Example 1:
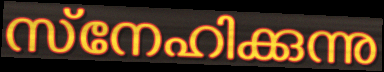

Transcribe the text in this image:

സ്‌നേഹിക്കുന്നു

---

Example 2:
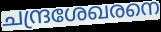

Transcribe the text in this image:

ചന്ദ്രശേഖരനെ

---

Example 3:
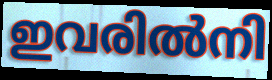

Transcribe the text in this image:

ഇവരിൽനി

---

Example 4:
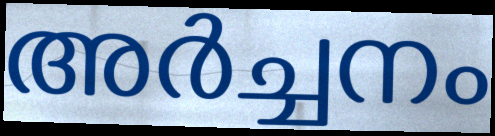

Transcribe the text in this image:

അർച്ചനം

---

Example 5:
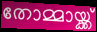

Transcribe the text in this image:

തോമ്മായ്ക്ക്